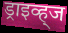
ड्राइव्ह्ज